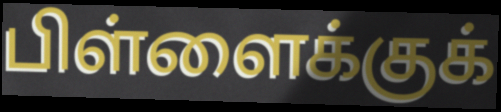
பிள்ளைக்குக்